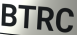
BTRC